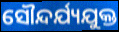
ସୌନ୍ଦର୍ଯ୍ୟଯୁକ୍ତ